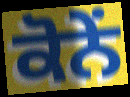
ਕੋਨੇਂ